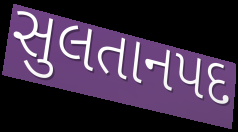
સુલતાનપદ